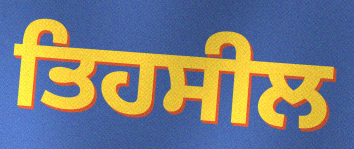
ਤਿਹਸੀਲ